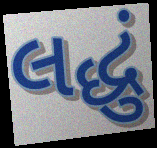
લદ્ધું